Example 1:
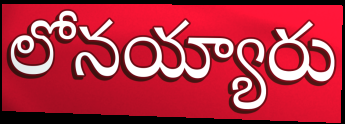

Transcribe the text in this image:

లోనయ్యారు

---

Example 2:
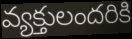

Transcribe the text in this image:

వ్యక్తులందరికి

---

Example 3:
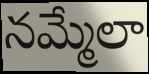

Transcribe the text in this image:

నమ్మేలా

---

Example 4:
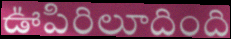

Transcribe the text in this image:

ఊపిరిలూదింది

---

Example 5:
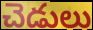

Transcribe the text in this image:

చెడులు